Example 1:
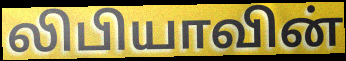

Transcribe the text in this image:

லிபியாவின்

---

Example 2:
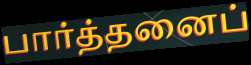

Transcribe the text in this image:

பார்த்தனைப்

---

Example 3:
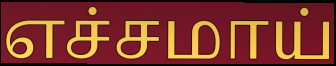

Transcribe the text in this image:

எச்சமாய்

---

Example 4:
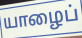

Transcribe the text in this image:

யாழைப்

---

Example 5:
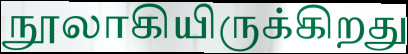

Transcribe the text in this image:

நூலாகியிருக்கிறது